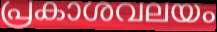
പ്രകാശവലയം